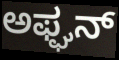
ಅಫ್ಘನ್